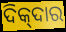
ଦିକ୍‍ଦାର